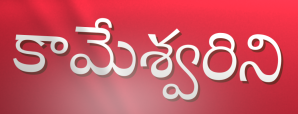
కామేశ్వరిని